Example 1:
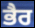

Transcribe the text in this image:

ਭੈਰ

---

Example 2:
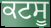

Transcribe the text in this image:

ਕਟਸੂ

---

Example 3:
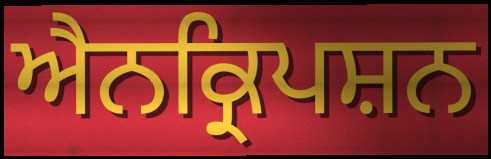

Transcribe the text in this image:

ਐਨਕ੍ਰਿਪਸ਼ਨ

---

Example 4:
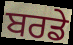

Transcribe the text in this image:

ਬਰਡੇ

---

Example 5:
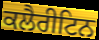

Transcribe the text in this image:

ਕਲੈਰੀਟਿਨ